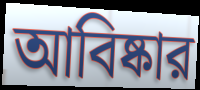
আবিষ্কার